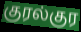
குரல்குர